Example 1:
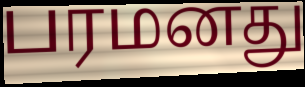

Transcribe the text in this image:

பரமனது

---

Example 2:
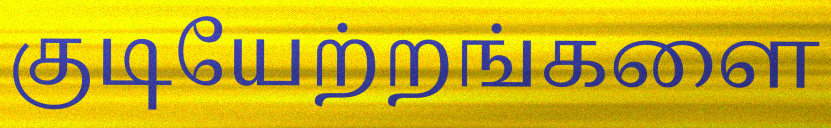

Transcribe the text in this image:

குடியேற்றங்களை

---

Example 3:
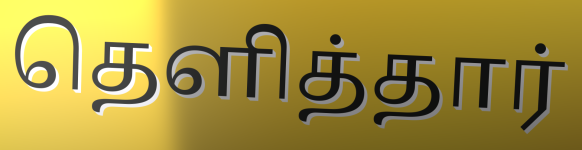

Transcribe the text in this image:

தெளித்தார்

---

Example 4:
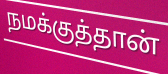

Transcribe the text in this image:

நமக்குத்தான்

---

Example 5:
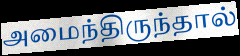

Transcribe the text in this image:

அமைந்திருந்தால்